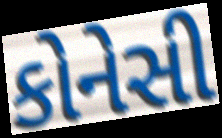
કોનેસી